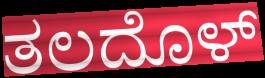
ತಲದೊಳ್